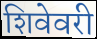
शिवेवरी